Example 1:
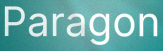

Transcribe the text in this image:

Paragon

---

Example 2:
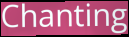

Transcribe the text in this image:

Chanting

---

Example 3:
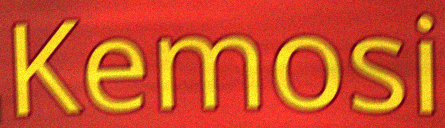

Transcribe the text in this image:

Kemosi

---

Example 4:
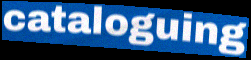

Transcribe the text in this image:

cataloguing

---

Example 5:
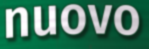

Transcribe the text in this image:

nuovo